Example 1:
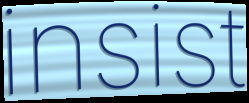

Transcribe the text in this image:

insist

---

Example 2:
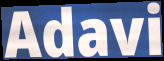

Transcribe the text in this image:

Adavi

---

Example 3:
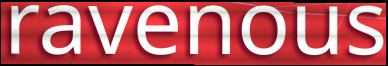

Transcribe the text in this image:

ravenous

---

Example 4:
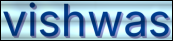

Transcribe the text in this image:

vishwas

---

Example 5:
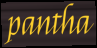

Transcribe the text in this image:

pantha